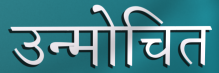
उन्मोचित